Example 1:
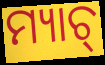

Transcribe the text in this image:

ମ୍ୟାଚ୍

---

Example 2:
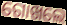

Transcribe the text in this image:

ଗୋଖଲେ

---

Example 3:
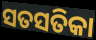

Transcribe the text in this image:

ସତସତିକା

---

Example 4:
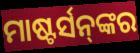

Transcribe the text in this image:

ମାଷ୍ଟର୍ସନ୍‌ଙ୍କର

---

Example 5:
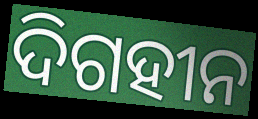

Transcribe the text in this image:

ଦିଗହୀନ